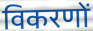
विकरणों